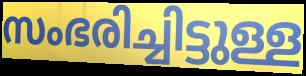
സംഭരിച്ചിട്ടുള്ള